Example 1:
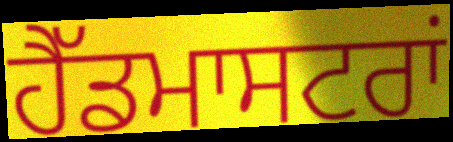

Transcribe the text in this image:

ਹੈੱਡਮਾਸਟਰਾਂ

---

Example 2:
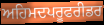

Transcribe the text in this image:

ਅਹਿਮਦਪਰੂਫਰੀਡਰ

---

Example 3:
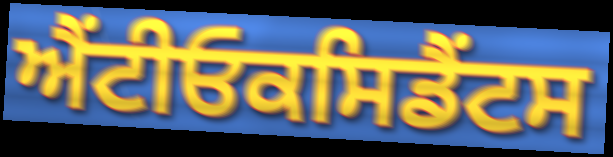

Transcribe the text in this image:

ਐਂਟੀਓਕਸਿਡੈਂਟਸ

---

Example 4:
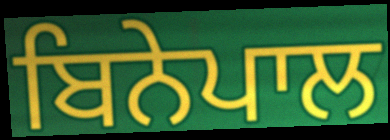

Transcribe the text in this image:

ਬਿਨੇਪਾਲ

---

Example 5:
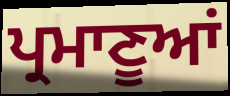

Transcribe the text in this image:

ਪ੍ਰਮਾਣੂਆਂ